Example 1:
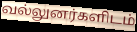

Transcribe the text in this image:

வல்லுனர்களிடம்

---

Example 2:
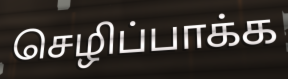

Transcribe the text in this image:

செழிப்பாக்க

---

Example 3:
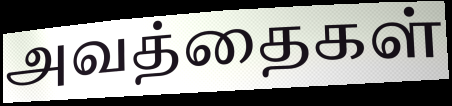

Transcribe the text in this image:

அவத்தைகள்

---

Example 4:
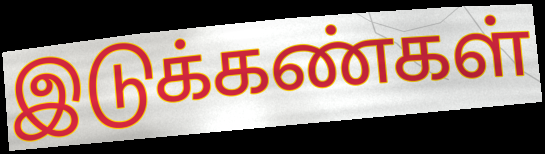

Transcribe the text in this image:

இடுக்கண்கள்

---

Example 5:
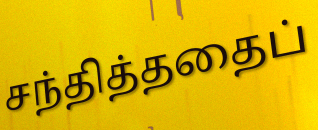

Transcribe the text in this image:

சந்தித்ததைப்